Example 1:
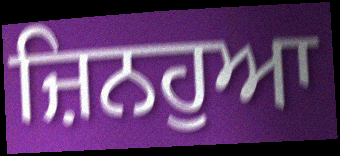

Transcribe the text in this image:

ਜ਼ਿਨਹੁਆ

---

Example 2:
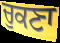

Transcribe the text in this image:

ਚੁਕਣਾ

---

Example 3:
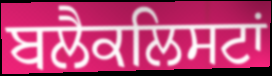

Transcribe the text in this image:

ਬਲੈਕਲਿਸਟਾਂ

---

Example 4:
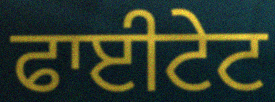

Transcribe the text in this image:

ਫਾਈਟੇਟ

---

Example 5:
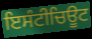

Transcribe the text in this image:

ਇਸੰਟੀਚਿਊਟ